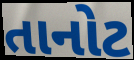
તાનોટ